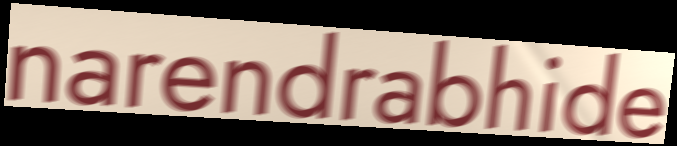
narendrabhide